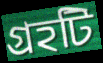
গ্রহটি